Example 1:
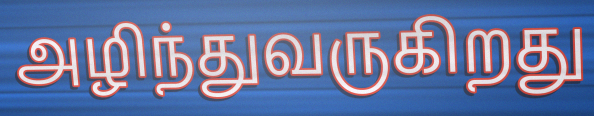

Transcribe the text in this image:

அழிந்துவருகிறது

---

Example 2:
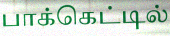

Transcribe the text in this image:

பாக்கெட்டில்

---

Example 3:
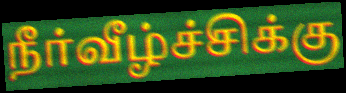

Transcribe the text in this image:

நீர்வீழ்ச்சிக்கு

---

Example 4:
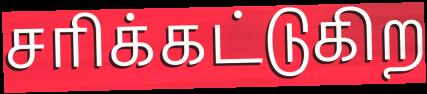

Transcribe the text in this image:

சரிக்கட்டுகிற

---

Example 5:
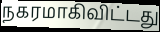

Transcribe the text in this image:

நகரமாகிவிட்டது